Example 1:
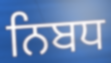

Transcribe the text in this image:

ਨਿਬਧ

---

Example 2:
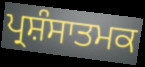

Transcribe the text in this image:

ਪ੍ਰਸ਼ੰਸਾਤਮਕ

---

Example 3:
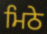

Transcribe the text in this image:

ਮਿਠੇ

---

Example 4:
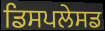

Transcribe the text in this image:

ਡਿਸਪਲੇਸਡ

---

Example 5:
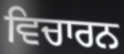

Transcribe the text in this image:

ਵਿਚਾਰਨ